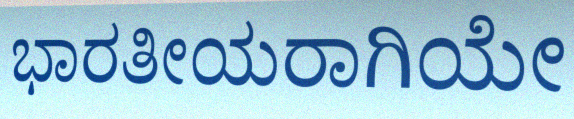
ಭಾರತೀಯರಾಗಿಯೇ